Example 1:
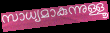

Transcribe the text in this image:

സാധ്യമാകുന്നുള്ളൂ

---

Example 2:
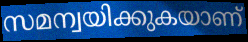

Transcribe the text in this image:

സമന്വയിക്കുകയാണ്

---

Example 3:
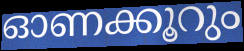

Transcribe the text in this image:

ഓണക്കൂറും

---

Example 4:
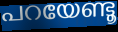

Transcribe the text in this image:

പറയേണ്ടൂ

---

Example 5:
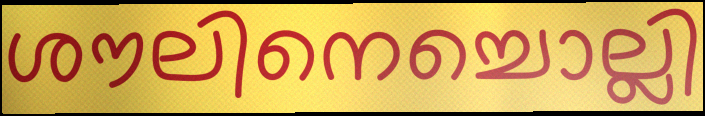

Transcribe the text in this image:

ശൗലിനെച്ചൊല്ലി